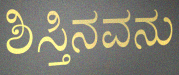
ಶಿಸ್ತಿನವನು